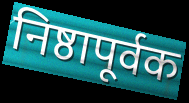
निष्ठापूर्वक